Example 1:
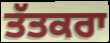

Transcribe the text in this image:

ਤੱਤਕਰਾ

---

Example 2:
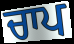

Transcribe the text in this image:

ਚਾਪ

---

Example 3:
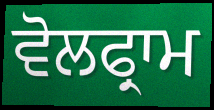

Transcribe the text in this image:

ਵੋਲਫ੍ਰਾਮ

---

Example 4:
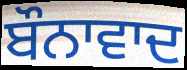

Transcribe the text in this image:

ਬੌਨਾਵਾਦ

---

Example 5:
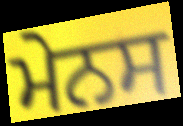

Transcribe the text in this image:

ਮੇਨਸ